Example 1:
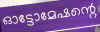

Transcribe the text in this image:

ഓട്ടോമേഷന്റെ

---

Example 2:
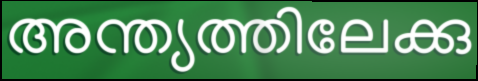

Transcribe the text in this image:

അന്ത്യത്തിലേക്കു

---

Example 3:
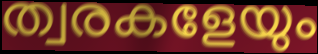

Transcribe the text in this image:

ത്വരകളേയും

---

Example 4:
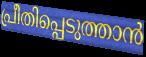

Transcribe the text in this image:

പ്രീതിപ്പെടുത്താൻ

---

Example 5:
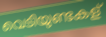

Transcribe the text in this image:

വെടിയുണ്ടകള്